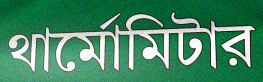
থার্মোমিটার